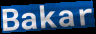
Bakar